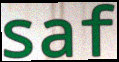
saf